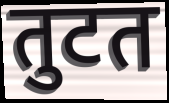
तुटत